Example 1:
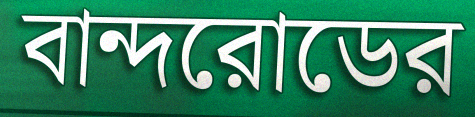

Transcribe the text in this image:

বান্দরোডের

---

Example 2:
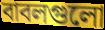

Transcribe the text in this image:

বাবলগুলো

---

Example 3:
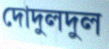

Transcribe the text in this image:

দোদুলদুল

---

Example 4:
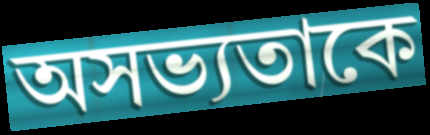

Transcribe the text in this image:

অসভ্যতাকে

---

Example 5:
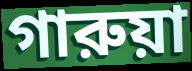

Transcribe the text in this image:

গারুয়া